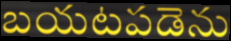
బయటపడెను